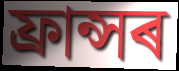
ফ্ৰান্সৰ